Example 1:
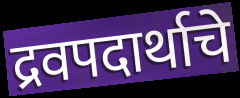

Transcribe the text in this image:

द्रवपदार्थाचे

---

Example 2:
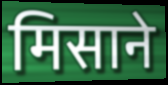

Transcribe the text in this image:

मिसाने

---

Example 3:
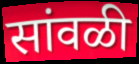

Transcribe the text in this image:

सांवळी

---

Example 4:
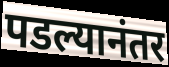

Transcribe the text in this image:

पडल्यानंतर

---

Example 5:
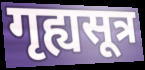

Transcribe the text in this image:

गृह्यसूत्र